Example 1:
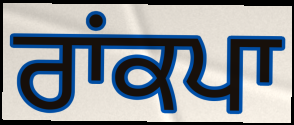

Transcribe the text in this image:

ਰਾਂਕਪਾ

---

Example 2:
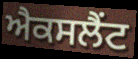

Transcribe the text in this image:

ਐਕਸਲੈਂਟ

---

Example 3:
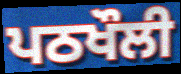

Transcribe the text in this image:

ਪਠਖੌਲੀ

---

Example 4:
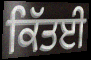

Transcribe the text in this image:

ਕਿੱਤਈ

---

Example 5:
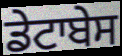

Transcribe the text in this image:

ਡੇਟਾਬੇਸ